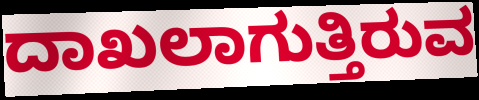
ದಾಖಲಾಗುತ್ತಿರುವ